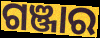
ଗଞ୍ଜାର